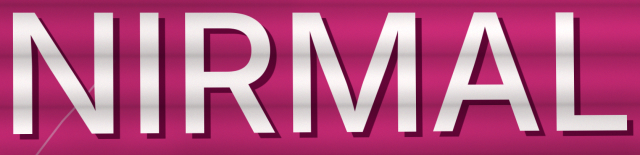
NIRMAL